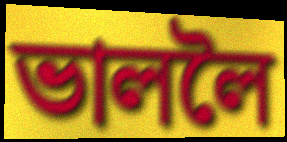
ভাললৈ